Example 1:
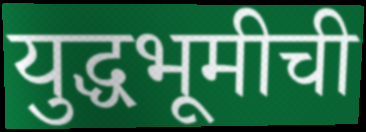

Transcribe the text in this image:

युद्धभूमीची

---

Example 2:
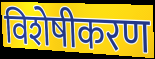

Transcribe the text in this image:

विशेषीकरण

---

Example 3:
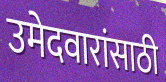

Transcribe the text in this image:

उमेदवारांसाठी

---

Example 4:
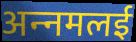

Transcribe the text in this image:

अन्नमलई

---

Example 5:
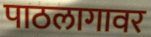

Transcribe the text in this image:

पाठलागावर